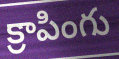
క్రాపింగు